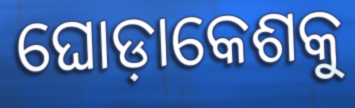
ଘୋଡ଼ାକେଶକୁ